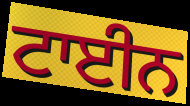
ਟਾਈਨ